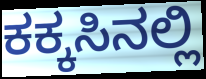
ಕಕ್ಕಸಿನಲ್ಲಿ